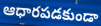
ఆధారపడకుండా